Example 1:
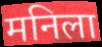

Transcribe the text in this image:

मनिला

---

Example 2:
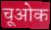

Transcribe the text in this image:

चूओक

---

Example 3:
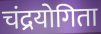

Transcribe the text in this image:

चंद्रयोगिता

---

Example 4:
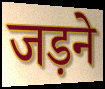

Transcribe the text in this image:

जड़ने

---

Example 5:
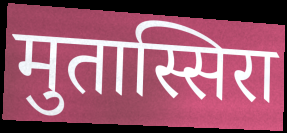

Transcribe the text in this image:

मुतास्सिरा